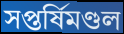
সপ্তর্ষিমণ্ডল